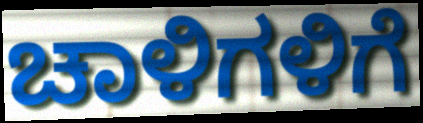
ಚಾಳಿಗಳಿಗೆ